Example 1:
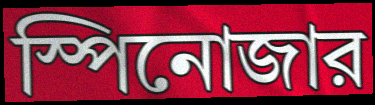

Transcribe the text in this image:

স্পিনোজার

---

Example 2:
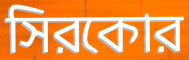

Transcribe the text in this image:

সিরকোর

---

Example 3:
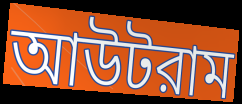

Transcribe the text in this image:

আউটরাম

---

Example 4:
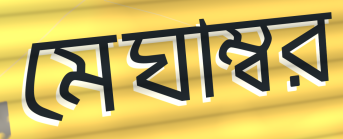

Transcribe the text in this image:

মেঘাম্বর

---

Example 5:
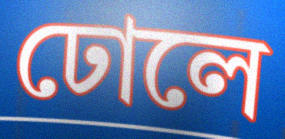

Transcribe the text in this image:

ঢোলে